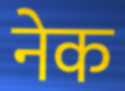
नेक